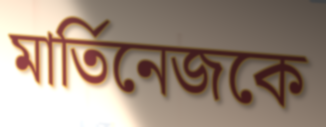
মার্তিনেজকে